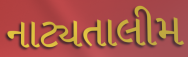
નાટ્યતાલીમ